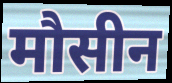
मौसीन